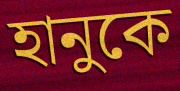
হানুকে